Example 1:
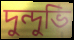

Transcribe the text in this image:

দুন্দুভি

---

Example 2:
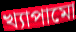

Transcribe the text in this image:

খ্যাপামো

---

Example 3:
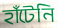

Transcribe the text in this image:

হাঁটেনি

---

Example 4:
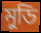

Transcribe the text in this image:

মুডি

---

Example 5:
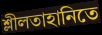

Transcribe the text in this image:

শ্লীলতাহানিতে